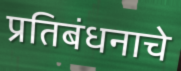
प्रतिबंधनाचे